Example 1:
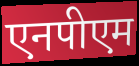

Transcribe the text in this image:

एनपीएम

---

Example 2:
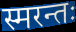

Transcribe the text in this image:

स्मरन्तः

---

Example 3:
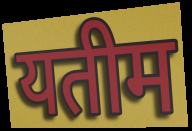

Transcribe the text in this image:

यतीम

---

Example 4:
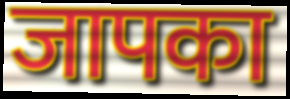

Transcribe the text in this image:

जापका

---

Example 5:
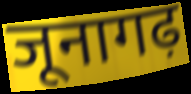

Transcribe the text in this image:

जूनागढ़